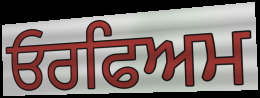
ਓਰਫਿਅਮ